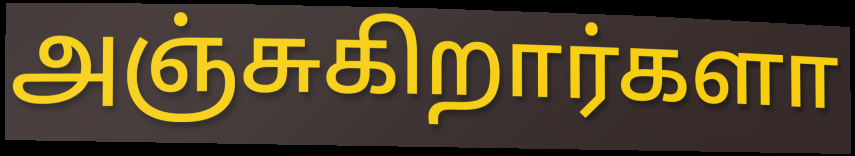
அஞ்சுகிறார்களா